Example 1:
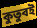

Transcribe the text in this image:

কুতুবই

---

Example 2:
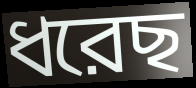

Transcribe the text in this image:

ধরেছ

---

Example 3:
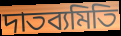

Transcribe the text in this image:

দাতব্যমিতি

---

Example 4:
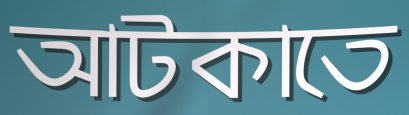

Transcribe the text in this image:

আটকাতে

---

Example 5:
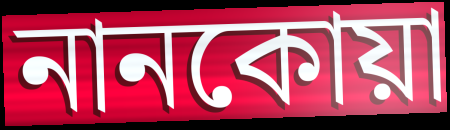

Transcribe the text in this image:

নানকোয়া